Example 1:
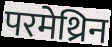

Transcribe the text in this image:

परमेथ्रिन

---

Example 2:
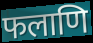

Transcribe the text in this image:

फलाणि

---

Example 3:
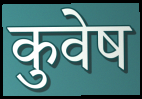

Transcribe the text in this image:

कुवेष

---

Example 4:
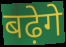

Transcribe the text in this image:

बढ़ेगे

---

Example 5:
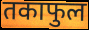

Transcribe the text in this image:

तकाफुल